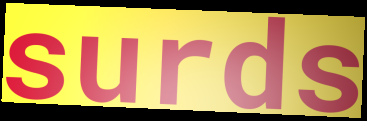
surds